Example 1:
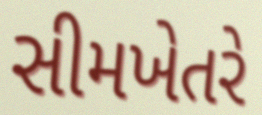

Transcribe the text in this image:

સીમખેતરે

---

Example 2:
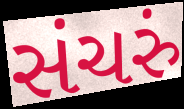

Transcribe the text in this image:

સંચરું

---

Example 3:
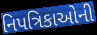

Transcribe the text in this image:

નિપત્રિકાઓની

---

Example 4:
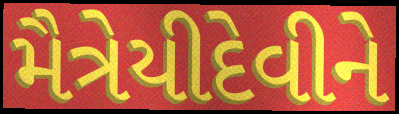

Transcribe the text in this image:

મૈત્રેયીદેવીને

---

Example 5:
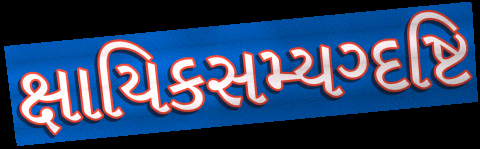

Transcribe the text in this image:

ક્ષાયિકસમ્યગ્દષ્ટિ